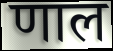
णाल